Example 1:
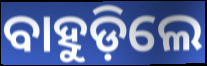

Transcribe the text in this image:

ବାହୁଡ଼ିଲେ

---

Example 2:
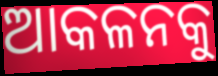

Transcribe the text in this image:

ଆକଳନକୁ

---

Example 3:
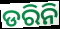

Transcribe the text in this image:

ଡରିନି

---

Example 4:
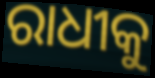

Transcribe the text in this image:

ରାଧୀକୁ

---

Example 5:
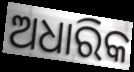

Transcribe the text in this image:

ଅଧାରିକ